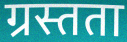
ग्रस्तता